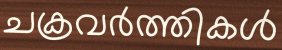
ചക്രവർത്തികൾ